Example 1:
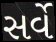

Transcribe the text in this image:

સર્વે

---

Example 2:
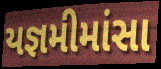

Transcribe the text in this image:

યજ્ઞમીમાંસા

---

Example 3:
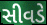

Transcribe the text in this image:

સીવડે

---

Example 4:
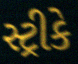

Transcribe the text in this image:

સ્ટ્રીકે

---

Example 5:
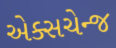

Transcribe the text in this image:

એક્સચેન્જ